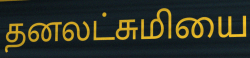
தனலட்சுமியை